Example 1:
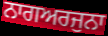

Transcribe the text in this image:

ਨਾਗਅਰਜੁਨਾ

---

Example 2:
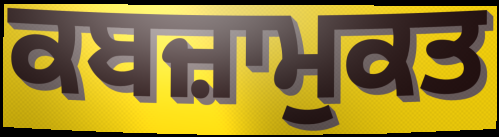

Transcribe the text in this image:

ਕਬਜ਼ਾਮੁਕਤ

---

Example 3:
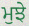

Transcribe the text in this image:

ਮੁਝੇ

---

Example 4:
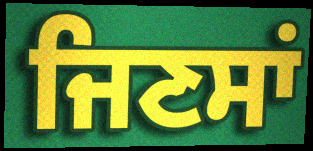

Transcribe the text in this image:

ਜਿਣਸਾਂ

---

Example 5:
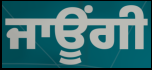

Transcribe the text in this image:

ਜਾਊਂਗੀ